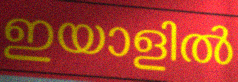
ഇയാളിൽ